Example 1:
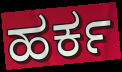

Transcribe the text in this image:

ಹರ್ಕ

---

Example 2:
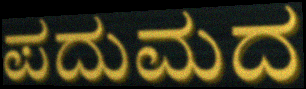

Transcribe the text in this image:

ಪದುಮದ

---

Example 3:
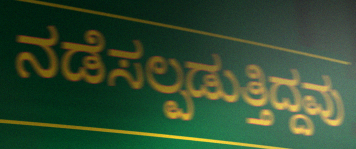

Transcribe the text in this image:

ನಡೆಸಲ್ಪಡುತ್ತಿದ್ದವು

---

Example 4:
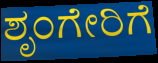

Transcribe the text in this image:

ಶೃಂಗೇರಿಗೆ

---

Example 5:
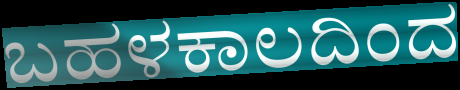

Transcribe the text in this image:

ಬಹಳಕಾಲದಿಂದ